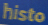
histo